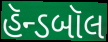
હૅન્ડબૉલ